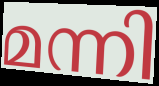
മന്നി